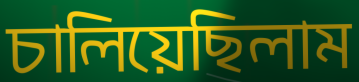
চালিয়েছিলাম